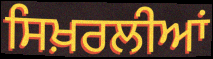
ਸਿਖ਼ਰਲੀਆਂ